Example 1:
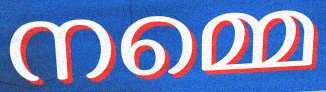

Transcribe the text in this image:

നമ്മെ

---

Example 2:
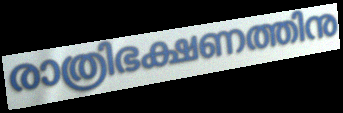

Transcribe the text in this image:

രാത്രിഭക്ഷണത്തിനു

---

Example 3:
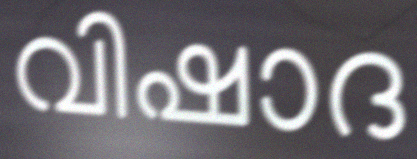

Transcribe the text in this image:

വിഷാദ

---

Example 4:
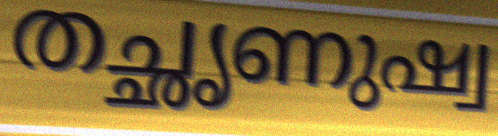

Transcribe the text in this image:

തച്ഛൃണുഷ്വ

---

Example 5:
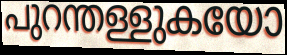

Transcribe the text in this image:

പുറന്തള്ളുകയോ